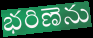
భరిణెను